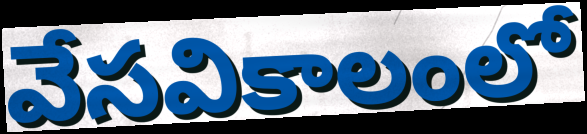
వేసవికాలంలో